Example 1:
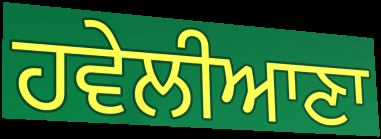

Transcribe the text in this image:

ਹਵੇਲੀਆਣਾ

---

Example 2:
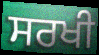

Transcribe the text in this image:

ਸਰਖੀ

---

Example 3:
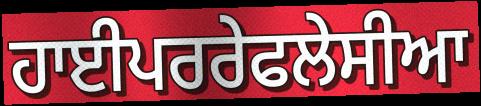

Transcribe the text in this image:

ਹਾਈਪਰਰੇਫਲੇਸੀਆ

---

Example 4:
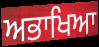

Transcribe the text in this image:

ਅਭਾਖਿਆ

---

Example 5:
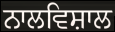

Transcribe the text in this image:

ਨਾਲਵਿਸ਼ਾਲ